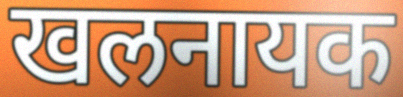
खलनायक